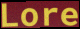
Lore